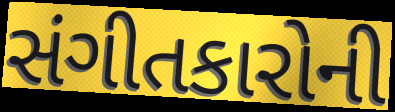
સંગીતકારોની